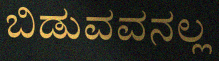
ಬಿಡುವವನಲ್ಲ